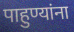
पाहुण्यांना